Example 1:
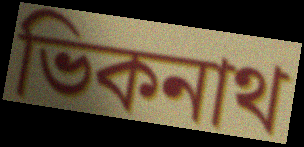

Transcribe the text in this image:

ভিকনাথ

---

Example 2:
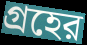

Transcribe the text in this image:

গ্রহের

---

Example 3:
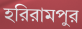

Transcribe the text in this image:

হরিরামপুর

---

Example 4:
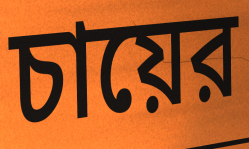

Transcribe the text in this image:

চায়ের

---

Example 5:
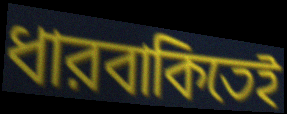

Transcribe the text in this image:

ধারবাকিতেই